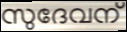
സുദേവന്